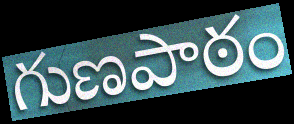
గుణపాఠం